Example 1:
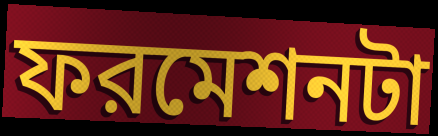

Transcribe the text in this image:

ফরমেশনটা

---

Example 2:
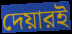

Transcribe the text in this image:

দেয়ারই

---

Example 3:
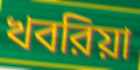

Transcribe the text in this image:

খবরিয়া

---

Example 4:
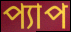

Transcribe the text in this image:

প্যাপ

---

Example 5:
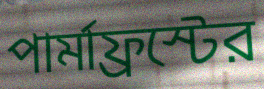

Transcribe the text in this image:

পার্মাফ্রস্টের